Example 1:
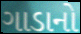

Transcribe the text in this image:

ગાડાનો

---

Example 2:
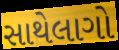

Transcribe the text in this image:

સાથેલાગો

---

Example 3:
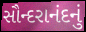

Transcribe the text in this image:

સૌન્દરાનંદનું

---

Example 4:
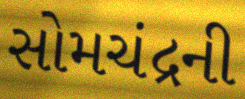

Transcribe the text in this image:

સોમચંદ્રની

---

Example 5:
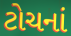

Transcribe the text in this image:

ટોચનાં